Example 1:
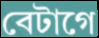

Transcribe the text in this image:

বেটাগে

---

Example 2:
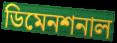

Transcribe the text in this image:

ডিমেনশনাল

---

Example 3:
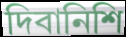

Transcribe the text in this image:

দিবানিশি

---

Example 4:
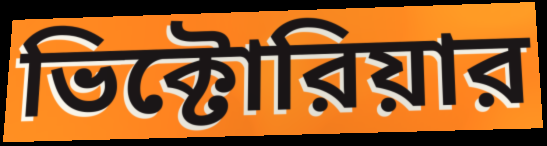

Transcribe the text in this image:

ভিক্টোরিয়ার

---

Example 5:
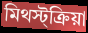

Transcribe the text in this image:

মিথস্ট্ক্রিয়া